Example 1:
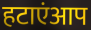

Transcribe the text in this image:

हटाएंआप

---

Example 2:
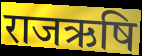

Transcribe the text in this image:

राजऋषि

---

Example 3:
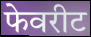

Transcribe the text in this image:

फेवरीट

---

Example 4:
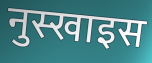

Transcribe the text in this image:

नुस्खाइस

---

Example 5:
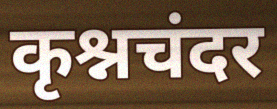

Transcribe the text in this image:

कृश्नचंदर